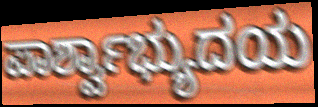
ಪಾರ್ಶ್ವಾಭ್ಯುದಯ